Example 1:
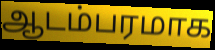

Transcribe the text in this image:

ஆடம்பரமாக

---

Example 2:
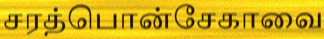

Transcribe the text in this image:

சரத்பொன்சேகாவை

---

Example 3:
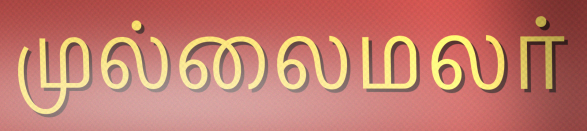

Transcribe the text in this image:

முல்லைமலர்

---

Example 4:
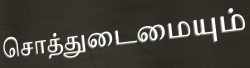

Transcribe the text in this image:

சொத்துடைமையும்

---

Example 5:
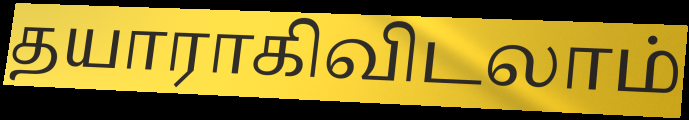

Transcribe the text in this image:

தயாராகிவிடலாம்